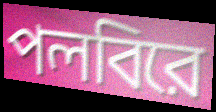
পলবিরে